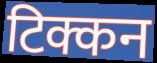
टिक्कन